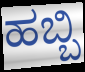
ಹಬ್ಬಿ